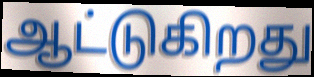
ஆட்டுகிறது